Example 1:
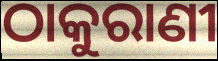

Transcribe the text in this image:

ଠାକୁରାଣୀ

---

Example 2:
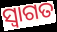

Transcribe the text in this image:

ସ୍ବାଗତ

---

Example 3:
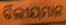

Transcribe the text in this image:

ବିଲୀୟମାନ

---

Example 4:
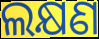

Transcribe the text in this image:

ଲକ୍ଷଣ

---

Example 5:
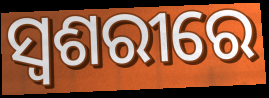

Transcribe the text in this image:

ସ୍ୱଶରୀରେ